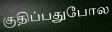
குதிப்பதுபோல